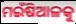
ମଇଁଷିଆଳକୁ